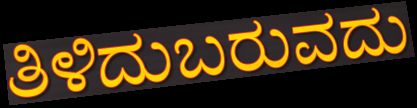
ತಿಳಿದುಬರುವದು